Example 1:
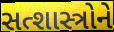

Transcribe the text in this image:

સત્શાસ્ત્રોને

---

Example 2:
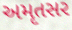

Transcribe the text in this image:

અમૃતસર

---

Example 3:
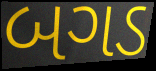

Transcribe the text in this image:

બગડ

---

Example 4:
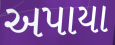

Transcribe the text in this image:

અપાયા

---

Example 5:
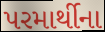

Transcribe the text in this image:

પરમાર્થીના